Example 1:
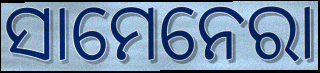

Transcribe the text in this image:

ସାମେନେରା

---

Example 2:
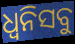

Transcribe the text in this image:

ଧ୍ୱନିସବୁ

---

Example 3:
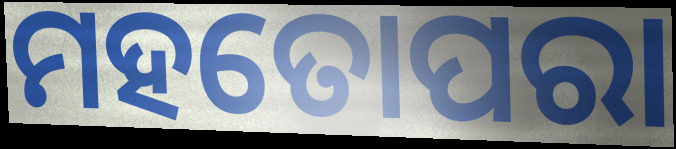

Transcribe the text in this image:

ମହତୋପରା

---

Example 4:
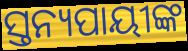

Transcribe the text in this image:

ସ୍ତନ୍ୟପାୟୀଙ୍କ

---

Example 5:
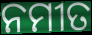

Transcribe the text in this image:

ନମୀତ